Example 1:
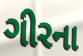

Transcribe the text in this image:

ગીરના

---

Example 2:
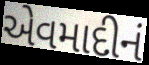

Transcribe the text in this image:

એવમાદીનં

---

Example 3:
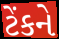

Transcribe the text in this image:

ટેંકને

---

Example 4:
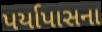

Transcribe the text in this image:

પર્યાપાસના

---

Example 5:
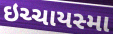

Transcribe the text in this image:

ઇચ્ચાયસ્મા